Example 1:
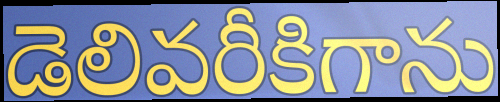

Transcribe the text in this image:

డెలివరీకిగాను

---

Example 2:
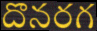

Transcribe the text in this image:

దొనరగ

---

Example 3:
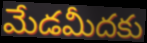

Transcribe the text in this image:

మేడమీదకు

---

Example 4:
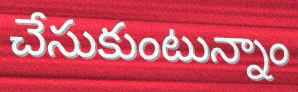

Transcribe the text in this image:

చేసుకుంటున్నాం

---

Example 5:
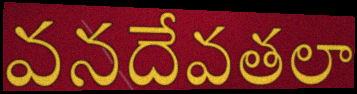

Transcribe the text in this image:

వనదేవతలా